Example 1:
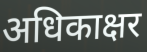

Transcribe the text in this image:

अधिकाक्षर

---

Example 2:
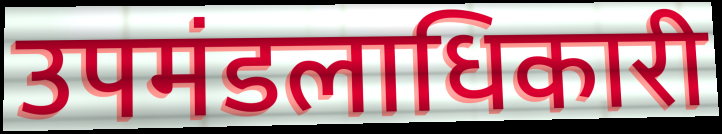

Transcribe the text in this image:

उपमंडलाधिकारी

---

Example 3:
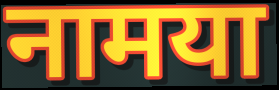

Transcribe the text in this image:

नामया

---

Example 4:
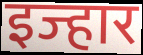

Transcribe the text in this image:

इज्हार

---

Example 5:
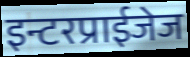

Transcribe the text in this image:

इन्टरप्राईजेज